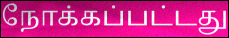
நோக்கப்பட்டது